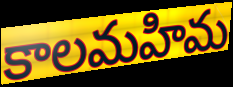
కాలమహిమ